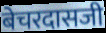
बेचरदासजी